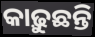
କାଢ଼ୁଛନ୍ତି